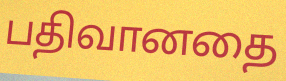
பதிவானதை